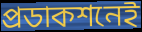
প্রডাকশনেই